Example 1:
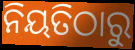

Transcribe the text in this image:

ନିୟତିଠାରୁ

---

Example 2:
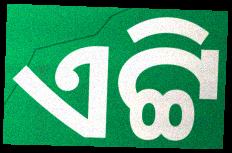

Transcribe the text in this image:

ଏଟ୍ଟି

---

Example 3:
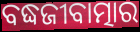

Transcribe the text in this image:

ବଦ୍ଧଜୀବାତ୍ମାର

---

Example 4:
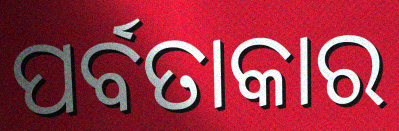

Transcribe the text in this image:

ପର୍ବତାକାର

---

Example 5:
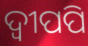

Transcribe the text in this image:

ଦ୍ବୀପପି